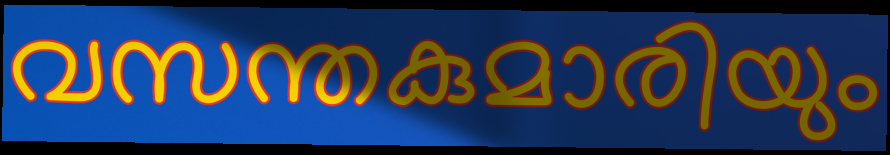
വസന്തകുമാരിയും